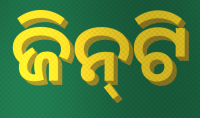
ଜିନ୍‌ଟି